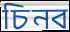
চিনব